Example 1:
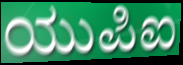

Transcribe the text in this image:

ಯುಪಿಐ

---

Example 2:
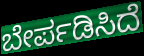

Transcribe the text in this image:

ಬೇರ್ಪಡಿಸಿದೆ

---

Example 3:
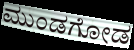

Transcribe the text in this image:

ಮುಂಡಗೋಡ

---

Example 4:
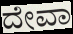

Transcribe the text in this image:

ದೇವಾ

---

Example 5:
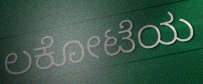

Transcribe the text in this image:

ಲಕೋಟೆಯ